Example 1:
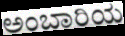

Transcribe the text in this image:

ಅಂಬಾರಿಯ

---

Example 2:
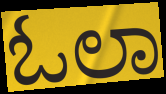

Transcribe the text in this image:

ಓಲಾ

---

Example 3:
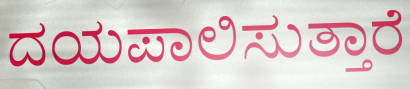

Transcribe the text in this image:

ದಯಪಾಲಿಸುತ್ತಾರೆ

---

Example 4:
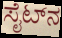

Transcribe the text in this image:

ಸೈಟ್‌ನ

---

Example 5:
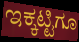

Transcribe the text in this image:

ಇಕ್ಕಟ್ಟಿಗೂ